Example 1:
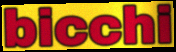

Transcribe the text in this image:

bicchi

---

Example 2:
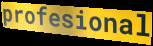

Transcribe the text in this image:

profesional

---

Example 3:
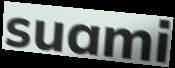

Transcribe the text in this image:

suami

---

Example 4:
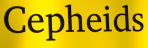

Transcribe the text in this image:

Cepheids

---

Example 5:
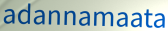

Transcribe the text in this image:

adannamaata